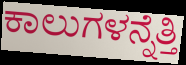
ಕಾಲುಗಳನ್ನೆತ್ತಿ